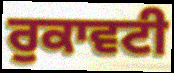
ਰੁਕਾਵਟੀ